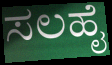
ಸಲಹೈ